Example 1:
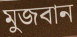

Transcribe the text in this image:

মুজবান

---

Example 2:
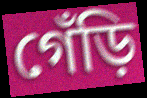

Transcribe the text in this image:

গেঁড়ি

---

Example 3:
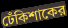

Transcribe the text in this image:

ঢেঁকিশাকের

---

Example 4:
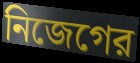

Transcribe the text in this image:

নিজেগের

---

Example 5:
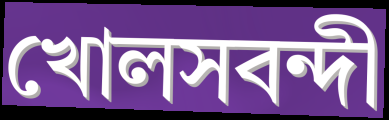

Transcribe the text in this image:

খোলসবন্দী